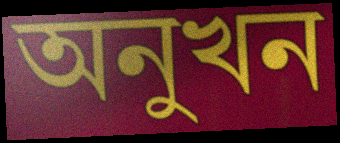
অনুখন